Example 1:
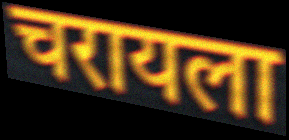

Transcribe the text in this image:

चरायला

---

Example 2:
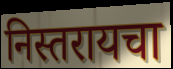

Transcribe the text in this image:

निस्तरायचा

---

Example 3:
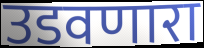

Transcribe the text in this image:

उडवणारा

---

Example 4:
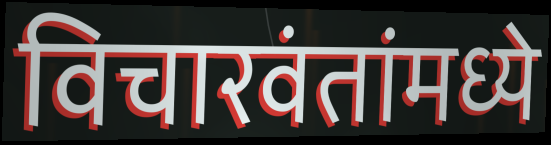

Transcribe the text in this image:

विचारवंतांमध्ये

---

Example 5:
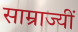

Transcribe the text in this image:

साम्राज्यीं